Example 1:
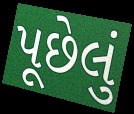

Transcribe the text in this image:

પૂછેલું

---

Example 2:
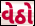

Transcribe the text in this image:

વેઠો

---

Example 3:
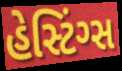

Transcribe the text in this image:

હેસ્ટિંગ્સ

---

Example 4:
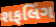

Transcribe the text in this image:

શફલિંગ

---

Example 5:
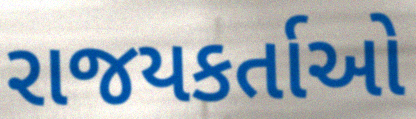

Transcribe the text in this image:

રાજયકર્તાઓ